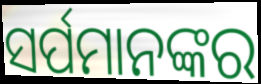
ସର୍ପମାନଙ୍କର